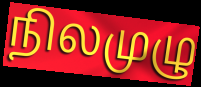
நிலமுழு